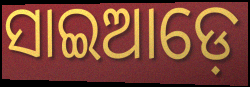
ସାଇଆଡ଼େ